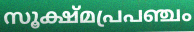
സൂക്ഷ്മപ്രപഞ്ചം